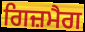
ਗਿਜ਼ਮੈਗ